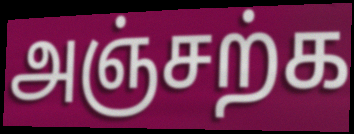
அஞ்சற்க